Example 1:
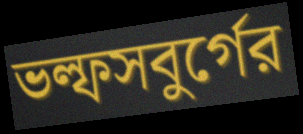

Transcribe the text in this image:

ভল্ফসবুর্গের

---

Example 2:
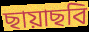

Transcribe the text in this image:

ছায়াছবি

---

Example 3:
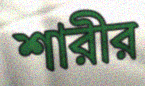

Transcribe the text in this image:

শারীর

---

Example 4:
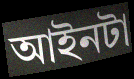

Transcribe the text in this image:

আইনটা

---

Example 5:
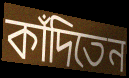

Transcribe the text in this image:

কাঁদিতেন